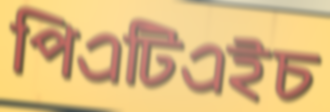
পিএটিএইচ